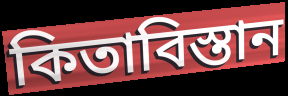
কিতাবিস্তান